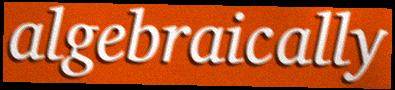
algebraically